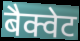
बैक्वेट